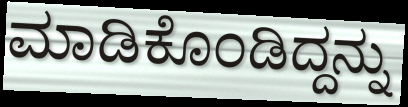
ಮಾಡಿಕೊಂಡಿದ್ದನ್ನು